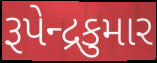
રૂપેન્દ્રકુમાર